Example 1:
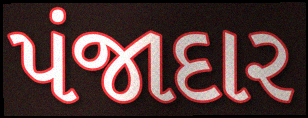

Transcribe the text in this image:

પંજાદાર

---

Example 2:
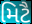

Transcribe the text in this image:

મિટૈ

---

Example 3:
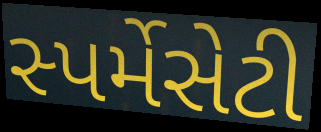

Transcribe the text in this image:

સ્પર્મેસેટી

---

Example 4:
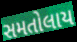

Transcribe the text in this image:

સમતોલાય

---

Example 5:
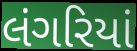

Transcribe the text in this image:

લંગરિયાં